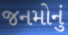
જનમોનું